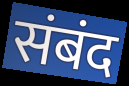
संबंद